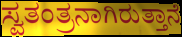
ಸ್ವತಂತ್ರನಾಗಿರುತ್ತಾನೆ